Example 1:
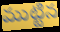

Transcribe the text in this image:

ముట్టిన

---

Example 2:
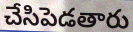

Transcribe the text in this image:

చేసిపెడతారు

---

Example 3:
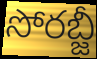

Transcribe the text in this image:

సోరబ్జీ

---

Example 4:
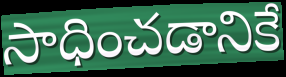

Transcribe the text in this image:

సాధించడానికే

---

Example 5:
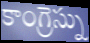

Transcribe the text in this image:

కాంగ్రెస్ను